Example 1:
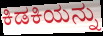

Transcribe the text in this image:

ಕಿಡಕಿಯನ್ನು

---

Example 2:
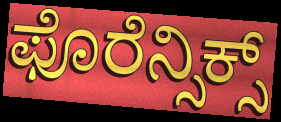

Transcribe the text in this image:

ಫೊರೆನ್ಸಿಕ್ಸ್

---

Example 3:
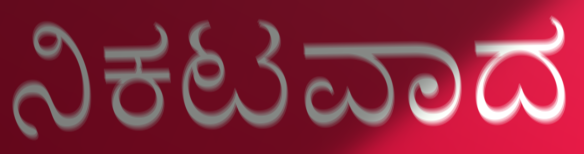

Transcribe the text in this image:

ನಿಕಟವಾದ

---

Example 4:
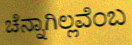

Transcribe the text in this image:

ಚೆನ್ನಾಗಿಲ್ಲವೆಂಬ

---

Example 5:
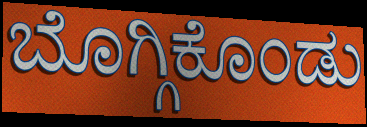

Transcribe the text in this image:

ಬೊಗ್ಗಿಕೊಂಡು